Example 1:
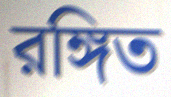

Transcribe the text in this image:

রঙ্গিত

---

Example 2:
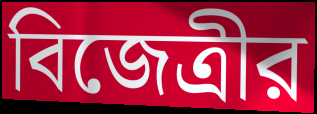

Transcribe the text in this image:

বিজেত্রীর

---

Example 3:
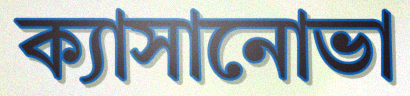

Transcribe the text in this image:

ক্যাসানোভা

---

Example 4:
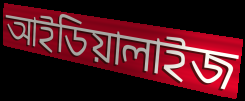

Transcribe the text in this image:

আইডিয়ালাইজ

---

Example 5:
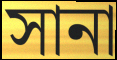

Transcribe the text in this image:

সানা